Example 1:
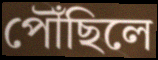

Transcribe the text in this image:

পৌঁছিলে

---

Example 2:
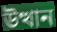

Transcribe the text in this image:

উত্থান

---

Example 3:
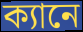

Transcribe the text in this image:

ক্যানে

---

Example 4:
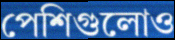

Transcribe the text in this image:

পেশিগুলোও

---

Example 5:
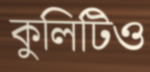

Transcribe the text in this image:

কুলিটিও